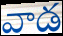
వాడ